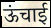
ऊंचाई